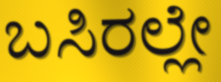
ಬಸಿರಲ್ಲೇ